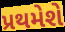
પ્રથમેશે